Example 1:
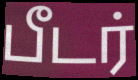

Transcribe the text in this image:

பீடர்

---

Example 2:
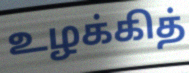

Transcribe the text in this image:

உழக்கித்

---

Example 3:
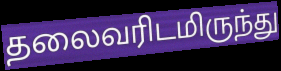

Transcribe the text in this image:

தலைவரிடமிருந்து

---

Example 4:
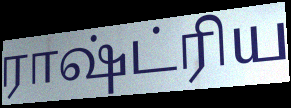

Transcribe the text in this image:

ராஷ்ட்ரிய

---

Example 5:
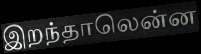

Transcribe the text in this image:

இறந்தாலென்ன